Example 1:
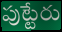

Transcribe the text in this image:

పుట్టేరు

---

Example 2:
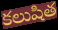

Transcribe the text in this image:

కలుషిత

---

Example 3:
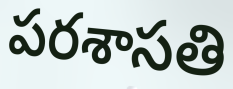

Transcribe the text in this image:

పరశాసతి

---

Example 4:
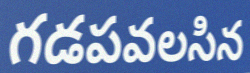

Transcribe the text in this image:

గడపవలసిన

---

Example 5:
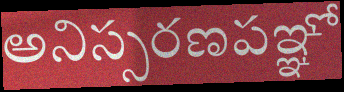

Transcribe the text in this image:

అనిస్సరణపఞ్ఞో